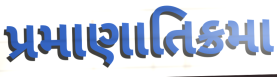
પ્રમાણાતિક્રમા